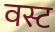
वस्ट